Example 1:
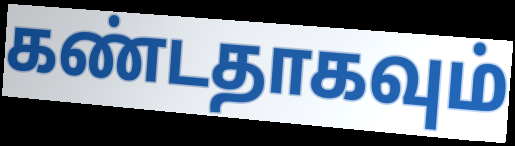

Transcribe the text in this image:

கண்டதாகவும்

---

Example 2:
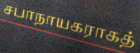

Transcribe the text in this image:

சபாநாயகராகத்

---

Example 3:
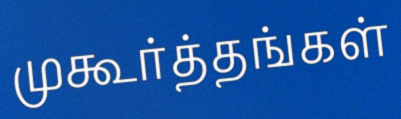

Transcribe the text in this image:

முகூர்த்தங்கள்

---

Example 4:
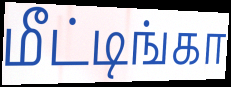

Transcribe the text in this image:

மீட்டிங்கா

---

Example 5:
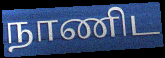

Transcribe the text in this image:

நாணிட